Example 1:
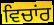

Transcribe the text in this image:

ਵਿਚਾਂਰ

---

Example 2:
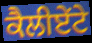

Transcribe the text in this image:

ਕੈਲੀਏਂਟੇ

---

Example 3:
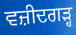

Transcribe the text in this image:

ਵਜ਼ੀਦਗੜ੍ਹ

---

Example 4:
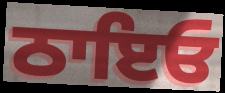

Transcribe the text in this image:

ਠਾਇਓ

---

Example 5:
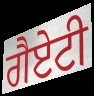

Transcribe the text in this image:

ਗੈਏਟੀ